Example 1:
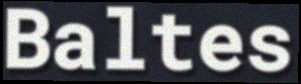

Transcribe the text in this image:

Baltes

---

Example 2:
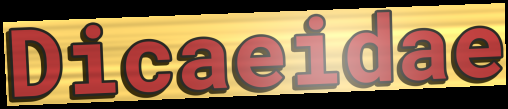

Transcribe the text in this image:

Dicaeidae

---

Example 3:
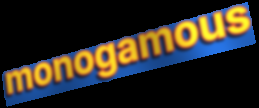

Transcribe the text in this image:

monogamous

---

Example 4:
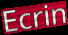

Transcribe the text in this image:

Ecrin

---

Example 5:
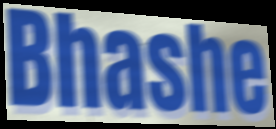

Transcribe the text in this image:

Bhashe